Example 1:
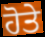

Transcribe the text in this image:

ਹੋਤੇ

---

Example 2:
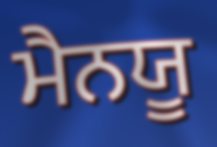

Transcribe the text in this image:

ਮੈਨਯੂ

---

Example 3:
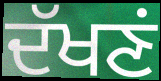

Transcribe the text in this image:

ਦੱਖਣਂ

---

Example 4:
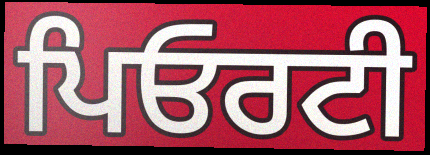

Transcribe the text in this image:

ਪਿਓਰਟੀ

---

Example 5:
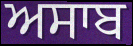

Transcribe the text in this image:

ਅਸਾਬ